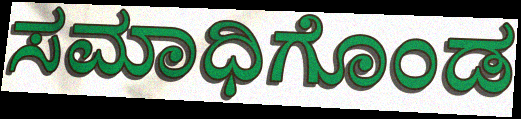
ಸಮಾಧಿಗೊಂಡ